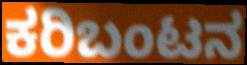
ಕರಿಬಂಟನ